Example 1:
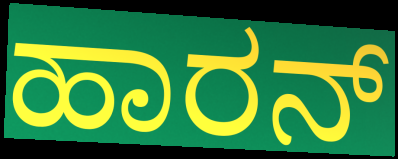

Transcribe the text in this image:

ಹಾರನ್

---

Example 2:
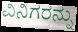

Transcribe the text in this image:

ವಿನಿಗರನ್ನು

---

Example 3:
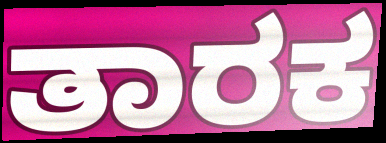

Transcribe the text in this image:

ತಾರಕ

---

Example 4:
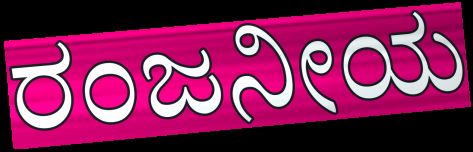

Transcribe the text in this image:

ರಂಜನೀಯ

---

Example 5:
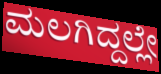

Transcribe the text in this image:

ಮಲಗಿದ್ದಲ್ಲೇ